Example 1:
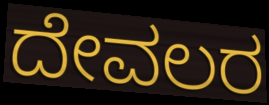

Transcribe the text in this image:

ದೇವಲರ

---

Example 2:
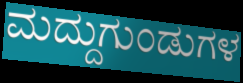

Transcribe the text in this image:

ಮದ್ದುಗುಂಡುಗಳ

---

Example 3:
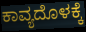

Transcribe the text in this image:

ಕಾವ್ಯದೊಳಕ್ಕೆ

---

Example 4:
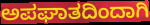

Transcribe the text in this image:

ಅಪಘಾತದಿಂದಾಗಿ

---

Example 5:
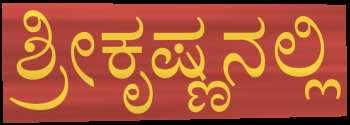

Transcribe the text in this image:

ಶ್ರೀಕೃಷ್ಣನಲ್ಲಿ